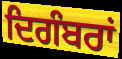
ਦਿਗੰਬਰਾਂ